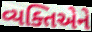
વ્યક્તિએને